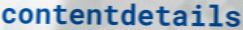
contentdetails